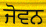
ਜੋਵਨ